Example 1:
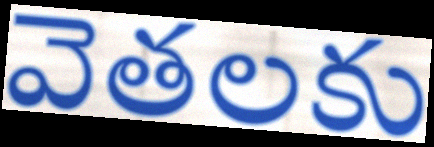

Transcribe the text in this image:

వెతలకు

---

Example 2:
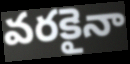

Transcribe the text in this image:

వరకైనా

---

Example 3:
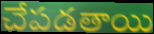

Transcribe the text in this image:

చేపడతాయి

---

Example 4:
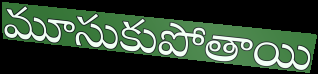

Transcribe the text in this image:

మూసుకుపోతాయి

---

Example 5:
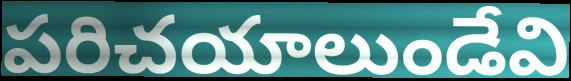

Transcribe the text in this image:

పరిచయాలుండేవి